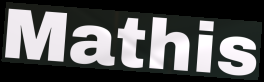
Mathis